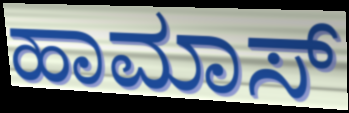
ಹಾಮಾಸ್